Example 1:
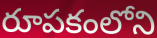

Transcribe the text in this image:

రూపకంలోని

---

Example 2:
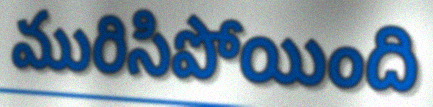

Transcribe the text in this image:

మురిసిపోయింది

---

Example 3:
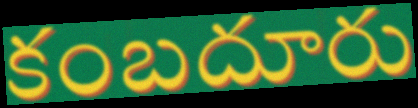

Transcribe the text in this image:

కంబదూరు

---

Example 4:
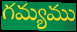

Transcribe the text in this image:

గమ్యము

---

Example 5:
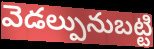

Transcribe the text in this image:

వెడల్పునుబట్టి